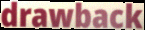
drawback